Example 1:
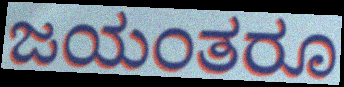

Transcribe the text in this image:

ಜಯಂತರೂ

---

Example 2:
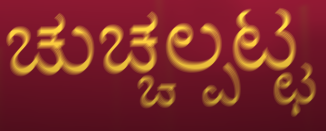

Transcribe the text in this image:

ಚುಚ್ಚಲ್ಪಟ್ಟ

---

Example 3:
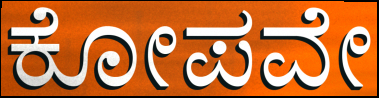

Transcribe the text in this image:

ಕೋಪವೇ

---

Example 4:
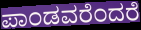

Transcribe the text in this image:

ಪಾಂಡವರೆಂದರೆ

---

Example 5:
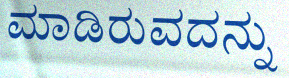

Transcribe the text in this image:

ಮಾಡಿರುವದನ್ನು